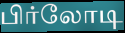
பிர்லோடி